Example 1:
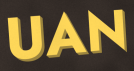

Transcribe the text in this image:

UAN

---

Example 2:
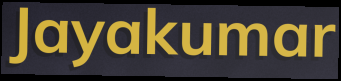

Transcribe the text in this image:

Jayakumar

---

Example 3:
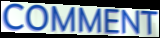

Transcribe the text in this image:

COMMENT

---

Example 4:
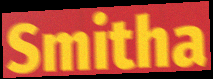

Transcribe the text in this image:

Smitha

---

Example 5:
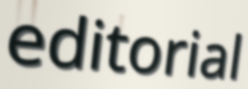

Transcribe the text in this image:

editorial